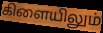
கிளையிலும்